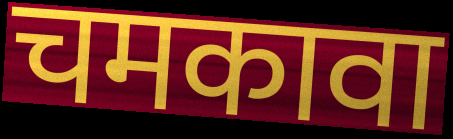
चमकावा